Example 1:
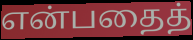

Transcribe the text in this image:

என்பதைத்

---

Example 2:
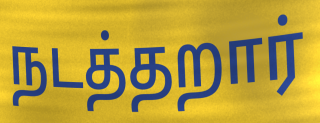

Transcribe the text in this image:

நடத்தறார்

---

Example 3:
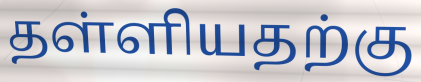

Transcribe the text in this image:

தள்ளியதற்கு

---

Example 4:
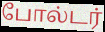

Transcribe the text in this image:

போல்டர்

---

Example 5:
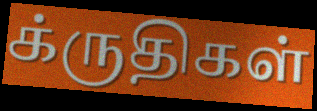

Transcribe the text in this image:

க்ருதிகள்